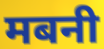
मबनी